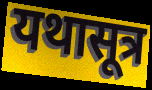
यथासूत्र